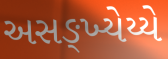
અસઙ્ખ્યેય્યે